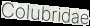
Colubridae